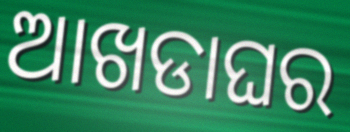
ଆଖଡାଘର